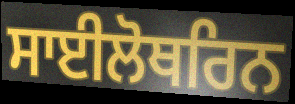
ਸਾਈਲੋਥਰਿਨ